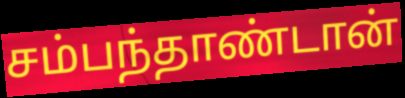
சம்பந்தாண்டான்